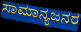
ಸಾಮಾನ್ಯಜನರ